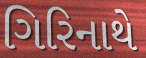
ગિરિનાથે